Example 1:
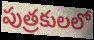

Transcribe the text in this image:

పుత్రకులలో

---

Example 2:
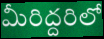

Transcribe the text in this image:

మీరిద్దరిలో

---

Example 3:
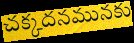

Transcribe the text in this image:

చక్కదనమునకు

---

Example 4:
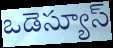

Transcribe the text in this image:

ఒడెస్యూస్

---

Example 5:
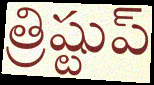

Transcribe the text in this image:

త్రిష్టుప్